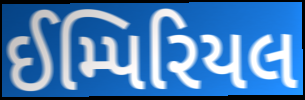
ઈમ્પિરિયલ